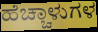
ಹೆಚ್ಚಾಳುಗಳ